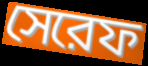
সেরেফ